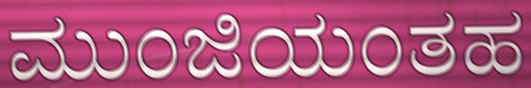
ಮುಂಜಿಯಂತಹ